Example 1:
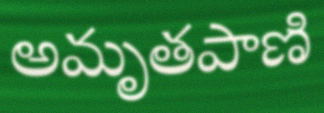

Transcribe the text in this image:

అమృతపాణి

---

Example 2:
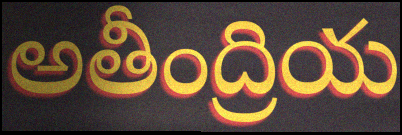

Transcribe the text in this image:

అతీంద్రియ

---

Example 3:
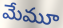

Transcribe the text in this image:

మేమూ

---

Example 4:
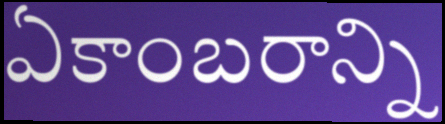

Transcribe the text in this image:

ఏకాంబరాన్ని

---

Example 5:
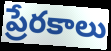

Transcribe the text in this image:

ప్రేరకాలు